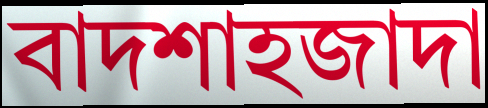
বাদশাহজাদা